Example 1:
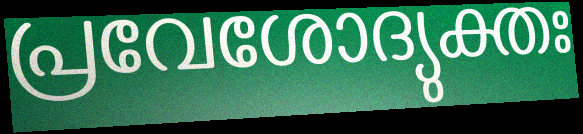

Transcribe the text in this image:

പ്രവേശോദ്യുക്തഃ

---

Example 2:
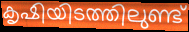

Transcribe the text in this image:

കൃഷിയിടത്തിലുണ്ട്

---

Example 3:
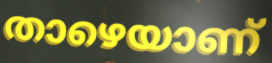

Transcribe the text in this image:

താഴെയാണ്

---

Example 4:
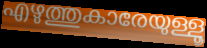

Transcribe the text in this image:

എഴുത്തുകാരേയുള്ളൂ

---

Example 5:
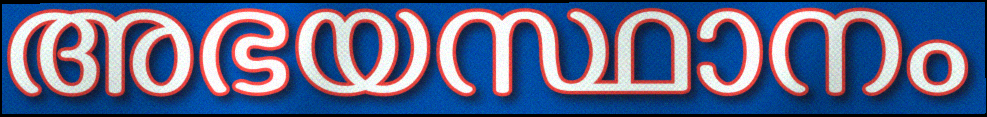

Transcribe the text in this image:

അഭയസ്ഥാനം